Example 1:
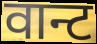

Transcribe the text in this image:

वान्ट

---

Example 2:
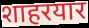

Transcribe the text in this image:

शाहरयार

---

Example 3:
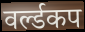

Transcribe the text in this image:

वर्ल्डकप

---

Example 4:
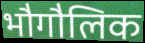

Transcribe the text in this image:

भौगौलिक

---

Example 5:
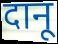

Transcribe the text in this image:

दानू